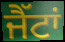
ਜੈੱਟਾਂ